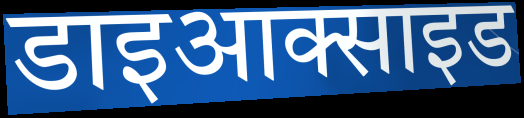
डाइआक्साइड